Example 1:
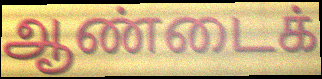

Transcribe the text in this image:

ஆண்டைக்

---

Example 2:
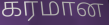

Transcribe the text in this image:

கரமான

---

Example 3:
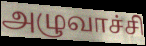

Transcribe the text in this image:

அழுவாச்சி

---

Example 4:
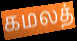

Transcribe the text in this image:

கமலத்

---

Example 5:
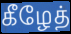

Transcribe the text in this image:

கீழேத்